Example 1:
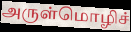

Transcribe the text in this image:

அருள்மொழிச்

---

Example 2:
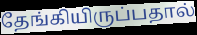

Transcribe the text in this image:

தேங்கியிருப்பதால்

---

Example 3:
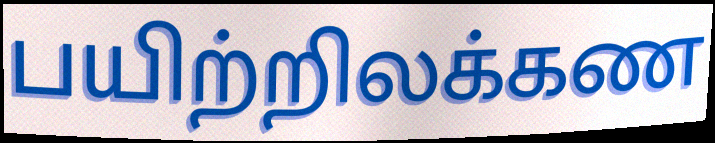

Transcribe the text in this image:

பயிற்றிலக்கண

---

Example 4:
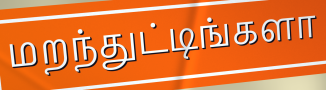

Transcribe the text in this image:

மறந்துட்டிங்களா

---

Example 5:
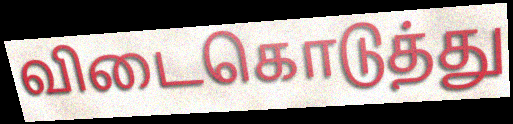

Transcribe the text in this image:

விடைகொடுத்து